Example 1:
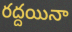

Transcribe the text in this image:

రద్దయినా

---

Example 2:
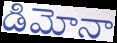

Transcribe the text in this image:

డిమోనా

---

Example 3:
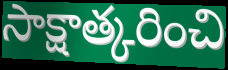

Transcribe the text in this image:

సాక్షాత్కరించి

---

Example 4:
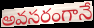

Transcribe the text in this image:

అవసరంగానే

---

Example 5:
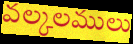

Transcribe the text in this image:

వల్కలములు